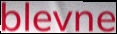
blevne